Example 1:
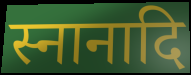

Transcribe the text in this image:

स्नानादि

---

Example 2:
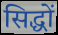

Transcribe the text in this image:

सिद्धों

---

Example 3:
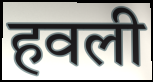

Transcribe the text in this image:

हवली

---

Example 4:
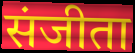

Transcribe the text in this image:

संजीता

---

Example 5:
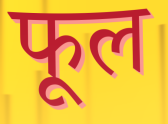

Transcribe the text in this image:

फूल